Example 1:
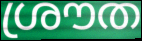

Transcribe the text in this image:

ശ്രൗത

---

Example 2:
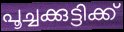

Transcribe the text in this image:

പൂച്ചക്കുട്ടിക്ക്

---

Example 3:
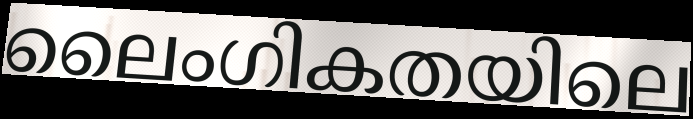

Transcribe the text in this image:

ലൈംഗികതയിലെ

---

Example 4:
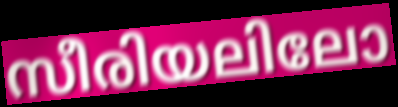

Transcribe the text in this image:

സീരിയലിലോ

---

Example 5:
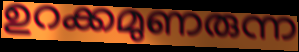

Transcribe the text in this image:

ഉറക്കമുണരുന്ന